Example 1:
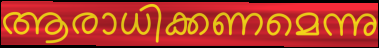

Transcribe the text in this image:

ആരാധിക്കണമെന്നു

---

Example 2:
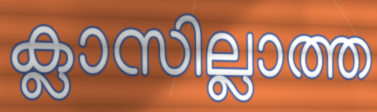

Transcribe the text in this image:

ക്ലാസില്ലാത്ത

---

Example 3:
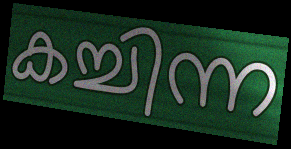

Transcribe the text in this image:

കച്ചിന്ന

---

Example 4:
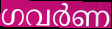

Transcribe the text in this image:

ഗവർണ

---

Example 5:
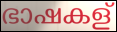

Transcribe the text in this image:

ഭാഷകള്